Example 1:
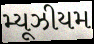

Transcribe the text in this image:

મ્યૂઝીયમ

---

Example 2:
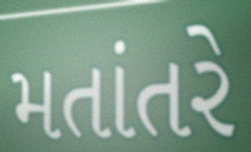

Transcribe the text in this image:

મતાંતરે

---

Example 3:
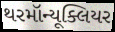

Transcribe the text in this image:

થરમૉન્યૂક્લિયર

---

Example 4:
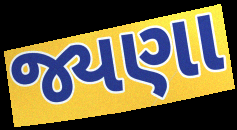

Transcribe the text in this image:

જ્યણા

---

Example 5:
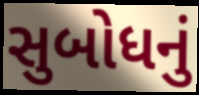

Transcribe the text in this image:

સુબોધનું